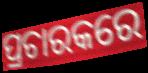
ପ୍ରଚାରକରେ